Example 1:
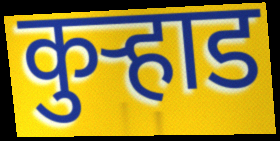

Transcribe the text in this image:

कुर्‍हाड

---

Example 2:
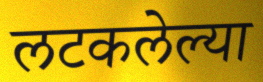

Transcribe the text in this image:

लटकलेल्या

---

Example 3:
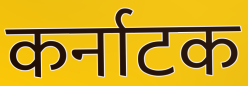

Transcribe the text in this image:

कर्नाटक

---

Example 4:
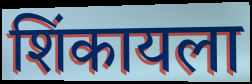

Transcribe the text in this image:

शिंकायला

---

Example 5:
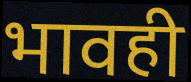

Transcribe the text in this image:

भावही